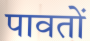
पावतों